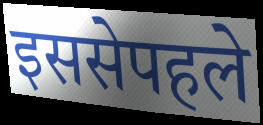
इससेपहले